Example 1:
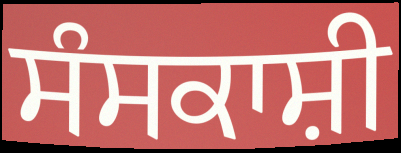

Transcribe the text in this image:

ਸੰਸਕਾਸ਼ੀ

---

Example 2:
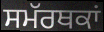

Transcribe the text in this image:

ਸਮੱਰਥਕਾਂ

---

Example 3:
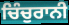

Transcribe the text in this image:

ਚਿੰਚੁਰਾਨੀ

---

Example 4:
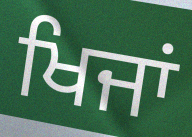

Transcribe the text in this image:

ਖਿਜਾਂ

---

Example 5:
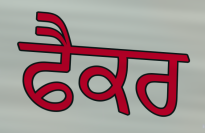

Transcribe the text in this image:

ਫੈਕਰ